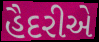
હૈદરીએ